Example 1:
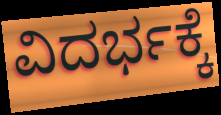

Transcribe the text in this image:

ವಿದರ್ಭಕ್ಕೆ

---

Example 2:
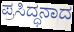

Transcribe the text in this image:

ಪ್ರಸಿದ್ಧನಾದ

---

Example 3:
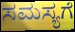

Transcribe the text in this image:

ಸಮಸ್ಯಗೆ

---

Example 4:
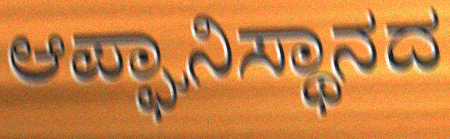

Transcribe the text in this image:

ಆಪ್ಘಾನಿಸ್ಥಾನದ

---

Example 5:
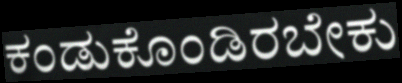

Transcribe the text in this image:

ಕಂಡುಕೊಂಡಿರಬೇಕು